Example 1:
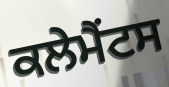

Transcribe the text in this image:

ਕਲੇਮੈਂਟਸ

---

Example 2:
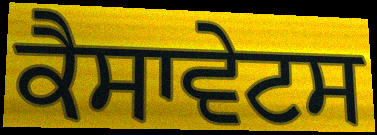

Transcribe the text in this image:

ਕੈਸਾਵੇਟਸ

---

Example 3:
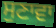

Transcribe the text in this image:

ਸੁਣਾਵਾ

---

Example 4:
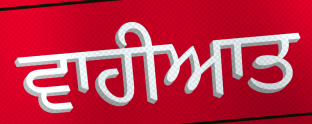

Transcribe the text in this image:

ਵਾਹੀਆਤ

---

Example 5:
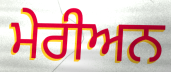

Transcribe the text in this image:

ਮੇਰੀਅਨ